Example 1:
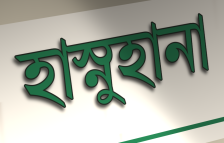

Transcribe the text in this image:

হাস্নুহানা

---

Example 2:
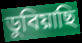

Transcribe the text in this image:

ডুবিয়াছি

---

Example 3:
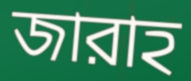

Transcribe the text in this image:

জারাহ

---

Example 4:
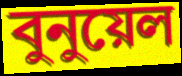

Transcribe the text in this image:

বুনুয়েল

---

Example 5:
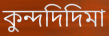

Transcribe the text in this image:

কুন্দদিদিমা